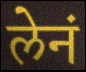
लेनं